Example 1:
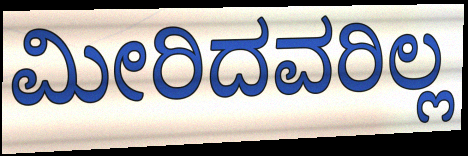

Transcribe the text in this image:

ಮೀರಿದವರಿಲ್ಲ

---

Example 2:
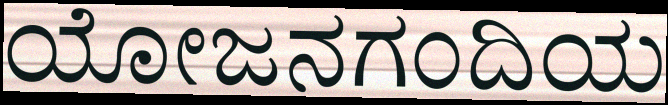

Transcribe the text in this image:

ಯೋಜನಗಂದಿಯ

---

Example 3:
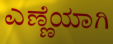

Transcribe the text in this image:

ಎಣ್ಣೆಯಾಗಿ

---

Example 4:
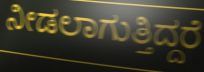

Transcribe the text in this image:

ನೀಡಲಾಗುತ್ತಿದ್ದರೆ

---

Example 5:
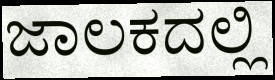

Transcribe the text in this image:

ಜಾಲಕದಲ್ಲಿ